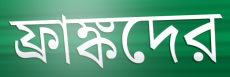
ফ্রাঙ্কদের